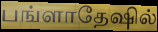
பங்ளாதேஷில்